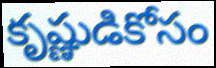
కృష్ణుడికోసం